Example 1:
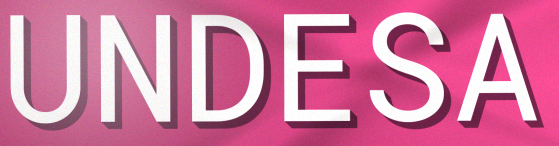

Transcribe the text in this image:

UNDESA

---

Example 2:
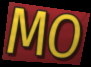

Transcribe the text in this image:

MO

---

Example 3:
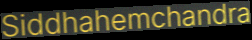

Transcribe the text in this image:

Siddhahemchandra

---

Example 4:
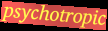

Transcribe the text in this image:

psychotropic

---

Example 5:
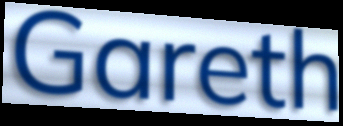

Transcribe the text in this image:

Gareth